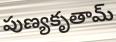
పుణ్యకృతామ్